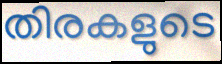
തിരകളുടെ